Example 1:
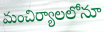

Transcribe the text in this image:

మంచిర్యాలలోనూ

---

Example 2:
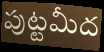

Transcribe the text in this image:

పుట్టమీద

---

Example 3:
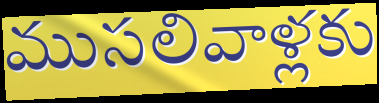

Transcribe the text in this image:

ముసలివాళ్లకు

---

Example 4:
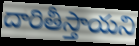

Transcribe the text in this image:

దారితీస్తాయని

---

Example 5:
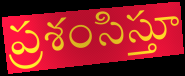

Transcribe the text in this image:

ప్రశంసిస్తూ